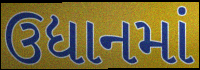
ઉદ્યાનમાં